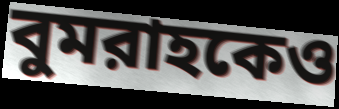
বুমরাহকেও